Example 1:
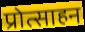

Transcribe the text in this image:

प्रोत्साहन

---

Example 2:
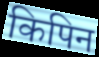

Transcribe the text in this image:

किपिन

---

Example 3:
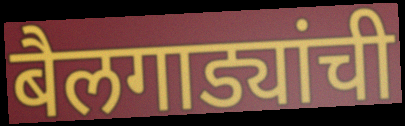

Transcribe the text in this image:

बैलगाड्यांची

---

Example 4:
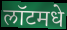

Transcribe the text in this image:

लॉटमधे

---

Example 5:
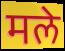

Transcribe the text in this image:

मले